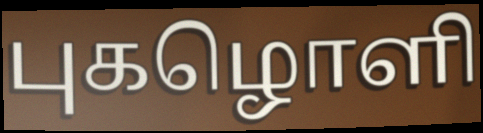
புகழொளி